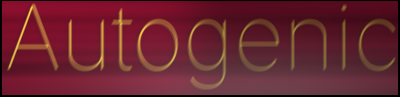
Autogenic